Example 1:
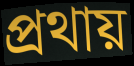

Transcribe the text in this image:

প্রথায়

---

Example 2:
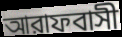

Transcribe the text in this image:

আরাফবাসী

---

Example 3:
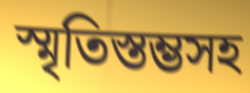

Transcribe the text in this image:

স্মৃতিস্তম্ভসহ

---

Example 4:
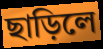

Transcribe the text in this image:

ছাড়িলে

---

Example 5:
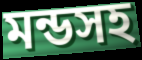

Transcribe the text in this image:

মন্ডসহ